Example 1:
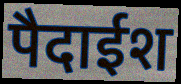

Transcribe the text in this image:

पैदाईश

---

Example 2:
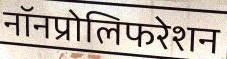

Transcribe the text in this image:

नॉनप्रोलिफरेशन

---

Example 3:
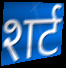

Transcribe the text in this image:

शर्ट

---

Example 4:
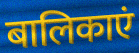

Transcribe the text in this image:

बालिकाएं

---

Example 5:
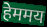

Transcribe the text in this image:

हेममय